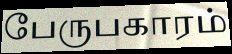
பேருபகாரம்